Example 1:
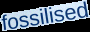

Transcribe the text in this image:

fossilised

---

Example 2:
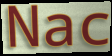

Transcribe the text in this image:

Nac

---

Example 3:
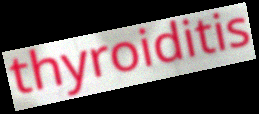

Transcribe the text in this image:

thyroiditis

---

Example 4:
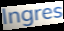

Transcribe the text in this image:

Ingres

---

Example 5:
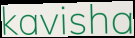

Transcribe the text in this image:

kavisha